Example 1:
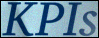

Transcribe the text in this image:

KPIs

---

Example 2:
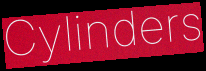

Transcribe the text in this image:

Cylinders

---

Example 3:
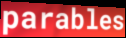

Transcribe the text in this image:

parables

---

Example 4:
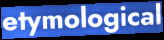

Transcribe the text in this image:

etymological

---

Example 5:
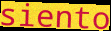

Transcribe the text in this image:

siento